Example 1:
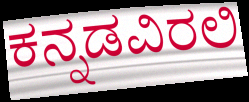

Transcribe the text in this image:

ಕನ್ನಡವಿರಲಿ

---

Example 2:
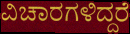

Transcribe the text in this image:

ವಿಚಾರಗಳಿದ್ದರೆ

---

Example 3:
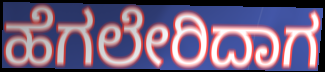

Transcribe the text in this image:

ಹೆಗಲೇರಿದಾಗ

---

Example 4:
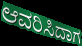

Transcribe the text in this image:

ಆವರಿಸಿದಾಗ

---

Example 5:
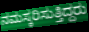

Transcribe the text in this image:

ನಮಸ್ಕರಿಸುತ್ತಿದ್ದರು